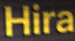
Hira